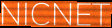
NICNET